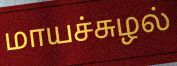
மாயச்சுழல்